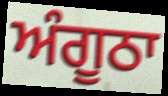
ਅੰਗੂਠਾ